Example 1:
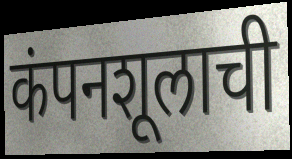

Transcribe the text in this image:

कंपनशूलाची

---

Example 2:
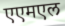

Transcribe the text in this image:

एएमएल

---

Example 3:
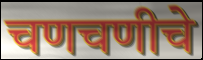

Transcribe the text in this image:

चणचणीचे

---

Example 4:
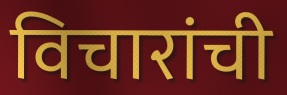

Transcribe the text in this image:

विचारांची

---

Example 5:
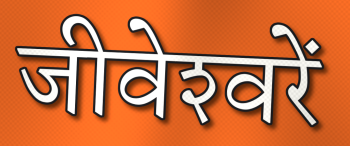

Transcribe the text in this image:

जीवेश्वरें